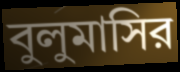
বুলুমাসির